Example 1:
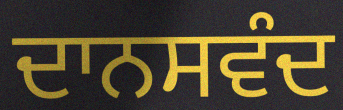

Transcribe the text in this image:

ਦਾਨਸਵੰਦ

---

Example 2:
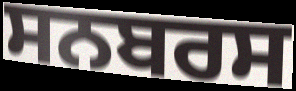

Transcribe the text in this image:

ਸਨਬਰਸ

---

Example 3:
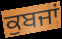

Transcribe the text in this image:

ਕੁਬਜਾਂ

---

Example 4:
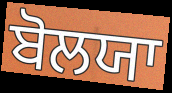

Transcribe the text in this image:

ਬੋਲਯਾ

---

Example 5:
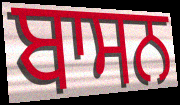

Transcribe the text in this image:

ਬਾਸਨ